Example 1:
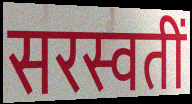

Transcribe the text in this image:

सरस्वतीं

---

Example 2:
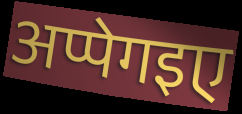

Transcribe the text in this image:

अप्पेगइए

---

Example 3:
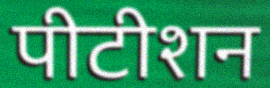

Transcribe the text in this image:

पीटीशन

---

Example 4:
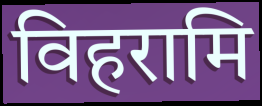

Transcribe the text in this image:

विहरामि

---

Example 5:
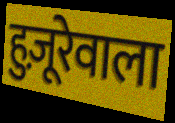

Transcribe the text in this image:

हुज़ूरेवाला